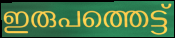
ഇരുപത്തെട്ട്